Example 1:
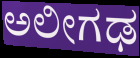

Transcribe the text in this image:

ಅಲೀಗಢ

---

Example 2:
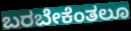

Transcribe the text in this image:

ಬರಬೇಕೆಂತಲೂ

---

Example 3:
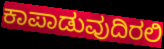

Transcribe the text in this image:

ಕಾಪಾಡುವುದಿರಲಿ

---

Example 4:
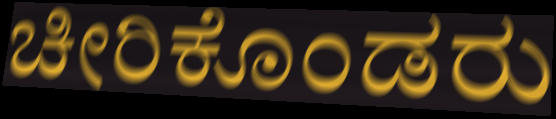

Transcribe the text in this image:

ಚೀರಿಕೊಂಡರು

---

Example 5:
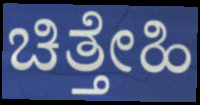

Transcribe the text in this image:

ಚಿತ್ತೇಹಿ